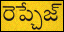
రెప్చేజ్